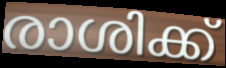
രാശിക്ക്